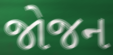
જોજન